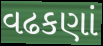
વઢકણાં